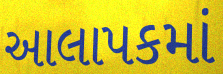
આલાપકમાં